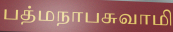
பத்மநாபசுவாமி